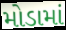
મોડામાં